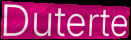
Duterte